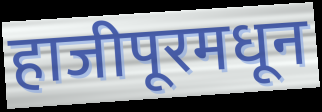
हाजीपूरमधून